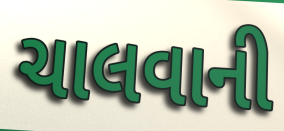
ચાલવાની